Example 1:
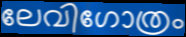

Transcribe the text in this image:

ലേവിഗോത്രം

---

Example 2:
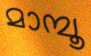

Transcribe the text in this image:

മാമ്പൂ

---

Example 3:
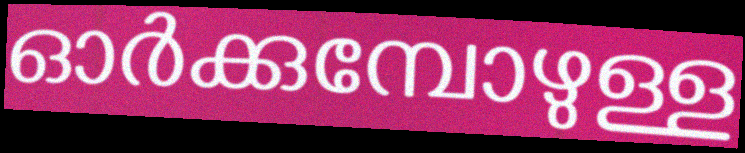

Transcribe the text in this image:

ഓർക്കുമ്പോഴുള്ള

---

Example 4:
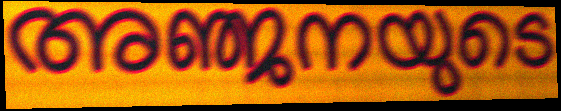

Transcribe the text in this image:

അഞ്ജനയുടെ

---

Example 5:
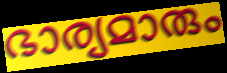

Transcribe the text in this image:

ഭാര്യമാരും